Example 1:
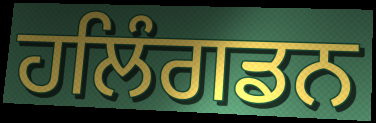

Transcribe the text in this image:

ਹਲਿੰਗਡਨ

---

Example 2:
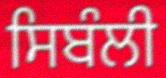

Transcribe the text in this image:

ਸਿਬੰਲੀ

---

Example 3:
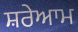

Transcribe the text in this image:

ਸ਼ਰੇਆਮ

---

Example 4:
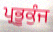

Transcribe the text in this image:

ਪ੍ਰਭੂਕੁੰਜ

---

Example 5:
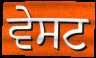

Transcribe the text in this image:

ਵੇਸਟ